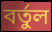
বর্তুল